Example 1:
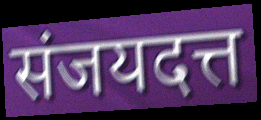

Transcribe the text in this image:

संजयदत्त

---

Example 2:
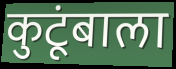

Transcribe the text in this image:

कुटूंबाला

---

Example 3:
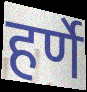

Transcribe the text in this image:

हर्णे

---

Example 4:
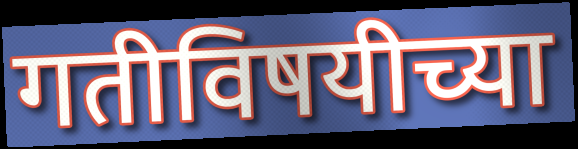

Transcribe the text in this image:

गतीविषयीच्या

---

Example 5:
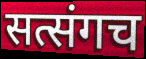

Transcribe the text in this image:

सत्संगच